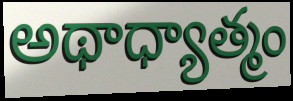
అథాధ్యాత్మం